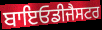
ਬਾਇਓਡੀਜੈਸਟਰ